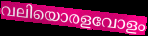
വലിയൊരളവോളം